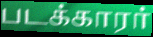
படக்காரர்